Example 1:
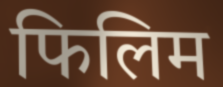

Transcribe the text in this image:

फिलिम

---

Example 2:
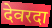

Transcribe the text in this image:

देवरदा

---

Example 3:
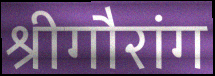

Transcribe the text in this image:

श्रीगौरांग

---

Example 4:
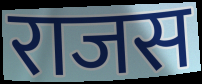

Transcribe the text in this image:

राजस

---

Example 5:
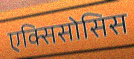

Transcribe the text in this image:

एक्सिसोसिस